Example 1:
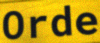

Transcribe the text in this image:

Orde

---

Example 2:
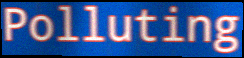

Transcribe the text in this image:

Polluting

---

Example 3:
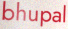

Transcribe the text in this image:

bhupal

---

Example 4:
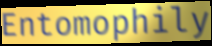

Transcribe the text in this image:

Entomophily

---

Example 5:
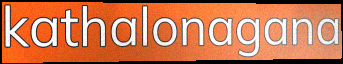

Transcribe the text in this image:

kathalonagana